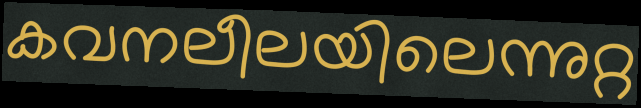
കവനലീലയിലെന്നുറ്റ